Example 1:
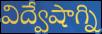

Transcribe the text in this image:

విద్వేషాగ్ని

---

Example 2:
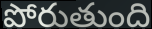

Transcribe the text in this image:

పోరుతుంది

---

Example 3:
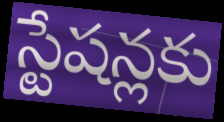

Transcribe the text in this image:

స్టేషన్లకు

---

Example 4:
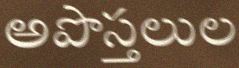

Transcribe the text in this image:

అపొస్తలుల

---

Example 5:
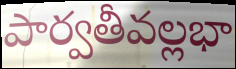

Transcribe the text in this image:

పార్వతీవల్లభా